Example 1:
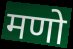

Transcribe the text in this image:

मणो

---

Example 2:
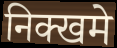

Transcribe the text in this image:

निक्खमे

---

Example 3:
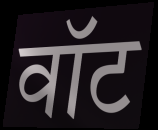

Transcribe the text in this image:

वॉट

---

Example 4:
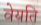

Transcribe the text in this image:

वेयति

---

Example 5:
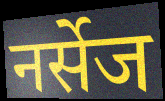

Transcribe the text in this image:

नर्सेज